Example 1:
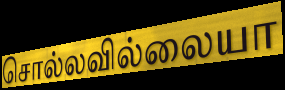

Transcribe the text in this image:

சொல்லவில்லையா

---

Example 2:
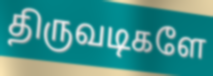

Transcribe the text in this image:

திருவடிகளே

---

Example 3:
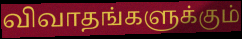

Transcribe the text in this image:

விவாதங்களுக்கும்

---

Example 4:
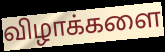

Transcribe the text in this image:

விழாக்களை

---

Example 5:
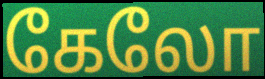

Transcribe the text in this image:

கேலோ